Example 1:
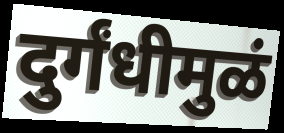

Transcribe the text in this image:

दुर्गंधीमुळं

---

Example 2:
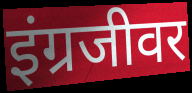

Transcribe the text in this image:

इंग्रजीवर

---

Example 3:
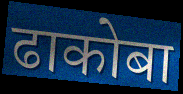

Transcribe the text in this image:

ढाकोबा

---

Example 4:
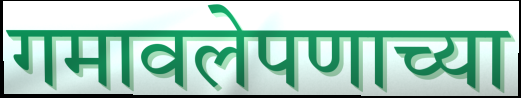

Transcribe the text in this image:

गमावलेपणाच्या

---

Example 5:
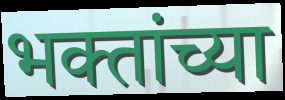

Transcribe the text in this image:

भक्तांच्या